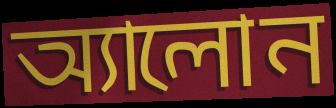
অ্যালোন